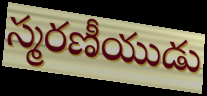
స్మరణీయుడు